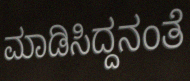
ಮಾಡಿಸಿದ್ದನಂತೆ